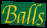
Balls